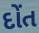
દોંત